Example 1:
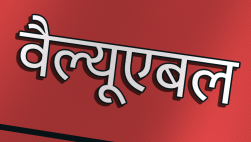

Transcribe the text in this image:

वैल्यूएबल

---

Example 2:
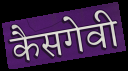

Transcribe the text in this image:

कैसगेवी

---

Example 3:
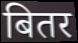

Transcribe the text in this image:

बितर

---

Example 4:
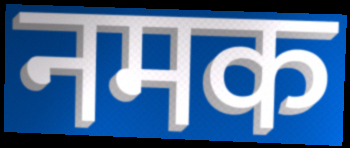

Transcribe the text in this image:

नमक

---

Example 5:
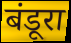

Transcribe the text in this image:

बंडूरा